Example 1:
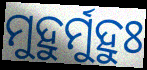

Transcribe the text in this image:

ମୁହୁର୍ମୁହୁଃ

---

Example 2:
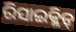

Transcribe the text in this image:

ରିସାଇକ୍ଲିଡ୍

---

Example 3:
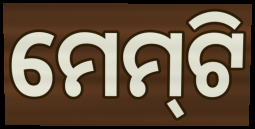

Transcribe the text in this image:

ମେମ୍‍ଟି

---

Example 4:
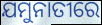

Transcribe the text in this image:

ଯମୁନାତୀରେ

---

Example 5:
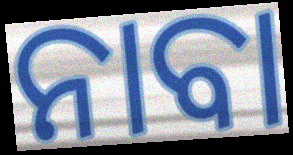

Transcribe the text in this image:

ନାବା